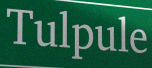
Tulpule